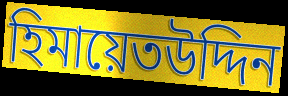
হিমায়েতউদ্দিন